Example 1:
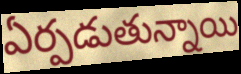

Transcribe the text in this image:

ఏర్పడుతున్నాయి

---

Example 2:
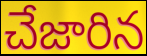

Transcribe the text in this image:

చేజారిన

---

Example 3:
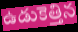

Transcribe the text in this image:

ఉడుకెత్తిన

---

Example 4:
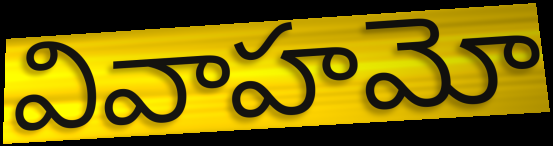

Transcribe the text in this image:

వివాహమో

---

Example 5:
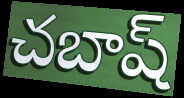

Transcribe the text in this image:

చబాష్